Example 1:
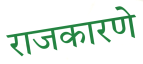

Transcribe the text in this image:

राजकारणे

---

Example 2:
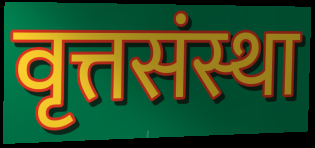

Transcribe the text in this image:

वृत्तसंस्था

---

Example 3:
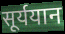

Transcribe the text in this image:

सूर्ययान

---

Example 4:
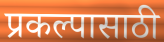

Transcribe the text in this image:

प्रकल्पासाठी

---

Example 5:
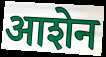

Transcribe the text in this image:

आशेन